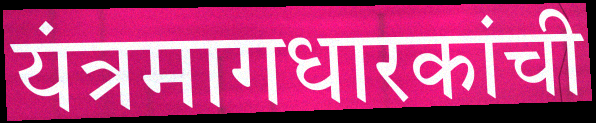
यंत्रमागधारकांची